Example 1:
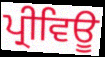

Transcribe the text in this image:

ਪ੍ਰੀਵਿਊ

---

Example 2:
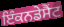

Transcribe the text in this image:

ਇੰਕਨਡੇਸੈਂਟ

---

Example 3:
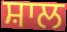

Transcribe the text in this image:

ਸ਼ਾਲ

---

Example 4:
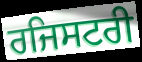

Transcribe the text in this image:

ਰਜਿਸਟਰੀ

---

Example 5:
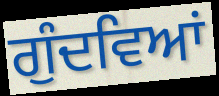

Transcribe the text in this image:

ਗੁੰਦਵਿਆਂ